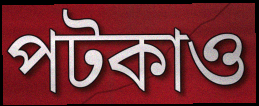
পটকাও